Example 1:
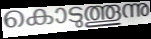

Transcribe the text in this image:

കൊടുത്തൂന്നു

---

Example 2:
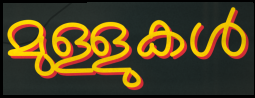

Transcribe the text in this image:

മുള്ളുകൾ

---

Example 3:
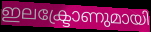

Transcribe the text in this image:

ഇലക്ട്രോണുമായി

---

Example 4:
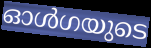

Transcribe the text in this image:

ഓൾഗയുടെ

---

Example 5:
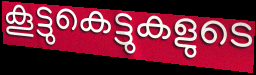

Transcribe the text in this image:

കൂട്ടുകെട്ടുകളുടെ